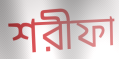
শরীফা